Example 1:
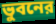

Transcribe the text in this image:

ভুবনের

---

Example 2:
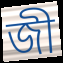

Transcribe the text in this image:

জী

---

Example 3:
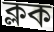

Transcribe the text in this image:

ক্লক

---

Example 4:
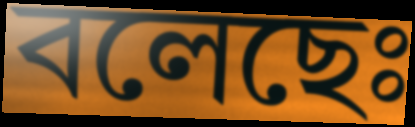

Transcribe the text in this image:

বলেছেঃ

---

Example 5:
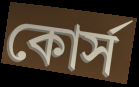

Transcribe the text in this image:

কোর্স